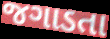
જગાડતા